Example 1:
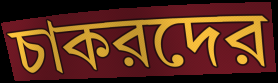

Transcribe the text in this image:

চাকরদের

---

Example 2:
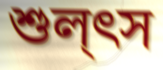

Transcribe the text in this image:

শুল্ৎস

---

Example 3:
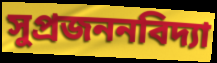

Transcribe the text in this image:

সুপ্রজননবিদ্যা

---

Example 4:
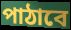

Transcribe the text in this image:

পাঠাবে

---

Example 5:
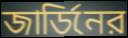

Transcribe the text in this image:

জার্ডিনের